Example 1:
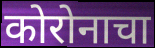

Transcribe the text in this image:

कोरोनाचा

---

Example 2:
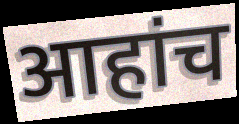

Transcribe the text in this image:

आहांच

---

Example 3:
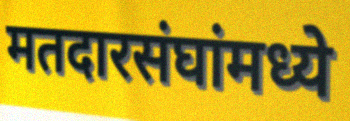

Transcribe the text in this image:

मतदारसंघांमध्ये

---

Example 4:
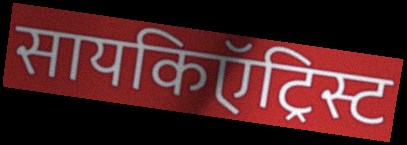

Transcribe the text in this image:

सायकिऍट्रिस्ट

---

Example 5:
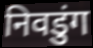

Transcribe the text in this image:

निवडुंग